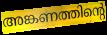
അങ്കണത്തിന്റെ